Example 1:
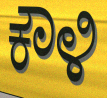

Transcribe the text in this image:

ಕೌಳಿ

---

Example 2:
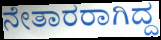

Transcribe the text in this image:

ನೇತಾರರಾಗಿದ್ದ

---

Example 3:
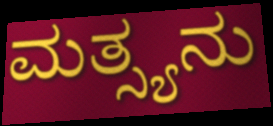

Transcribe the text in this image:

ಮತ್ಸ್ಯನು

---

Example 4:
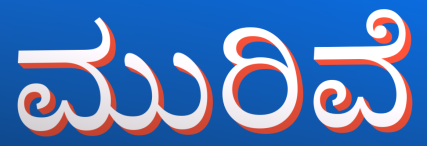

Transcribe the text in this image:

ಮುರಿವೆ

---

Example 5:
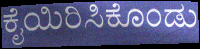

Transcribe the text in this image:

ಕೈಯಿರಿಸಿಕೊಂಡು